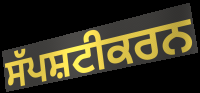
ਸੱਪਸ਼ਟੀਕਰਨ